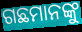
ଗଛମାନଙ୍କୁ